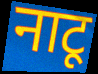
नाटू